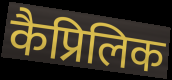
कैप्रिलिक